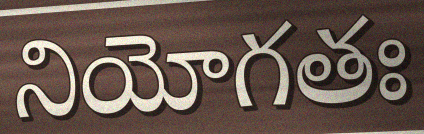
నియోగతః